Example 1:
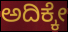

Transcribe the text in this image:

ಅದಿಕ್ಕೇ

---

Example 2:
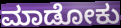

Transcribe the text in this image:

ಮಾಡೋಕು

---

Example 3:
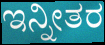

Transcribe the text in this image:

ಇನ್ನೀತರ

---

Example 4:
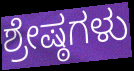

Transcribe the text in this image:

ಶ್ರೇಷ್ಠಗಳು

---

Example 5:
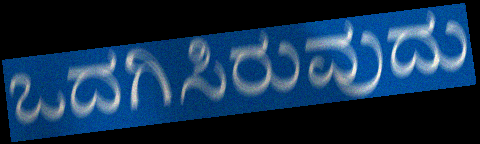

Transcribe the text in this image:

ಒದಗಿಸಿರುವುದು